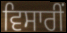
ਵਿਸਾਰੀਂ